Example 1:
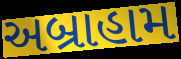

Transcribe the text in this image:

અબ્રાહામ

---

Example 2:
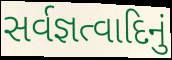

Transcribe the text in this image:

સર્વજ્ઞત્વાદિનું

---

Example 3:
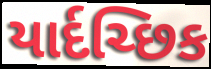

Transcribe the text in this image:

યાર્દચ્છિક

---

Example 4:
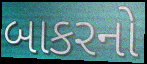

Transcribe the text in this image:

બાકરનો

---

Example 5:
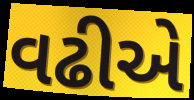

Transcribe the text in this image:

વઢીએ